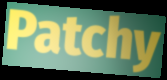
Patchy